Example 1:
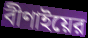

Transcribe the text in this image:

বীণাইয়ের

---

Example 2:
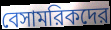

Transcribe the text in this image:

বেসামরিকদের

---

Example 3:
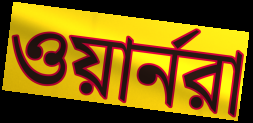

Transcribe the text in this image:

ওয়ার্নরা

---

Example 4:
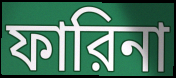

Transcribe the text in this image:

ফারিনা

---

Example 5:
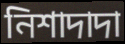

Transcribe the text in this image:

নিশাদাদা